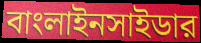
বাংলাইনসাইডার